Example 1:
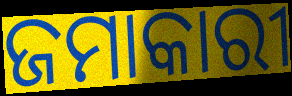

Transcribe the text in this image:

ଜମାକାରୀ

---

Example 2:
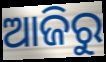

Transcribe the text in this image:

ଆଜିରୁ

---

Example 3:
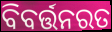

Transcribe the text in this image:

ବିବର୍ତ୍ତନରତ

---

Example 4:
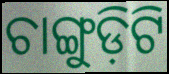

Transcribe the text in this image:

ଚାଙ୍ଗୁଡ଼ିଟି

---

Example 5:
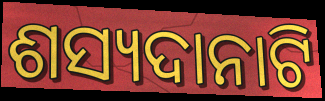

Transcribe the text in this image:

ଶସ୍ୟଦାନାଟି